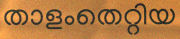
താളംതെറ്റിയ